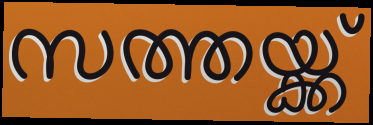
സത്തയ്ക്ക്